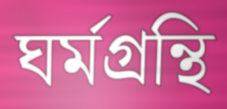
ঘর্মগ্রন্থি